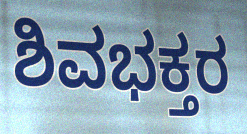
ಶಿವಭಕ್ತರ